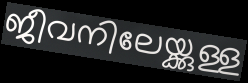
ജീവനിലേയ്ക്കുള്ള